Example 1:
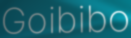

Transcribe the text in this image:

Goibibo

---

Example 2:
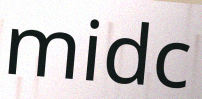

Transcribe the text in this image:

midc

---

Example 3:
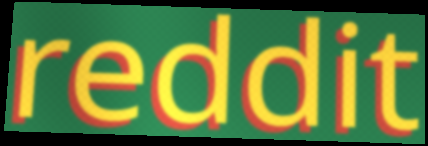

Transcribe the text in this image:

reddit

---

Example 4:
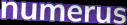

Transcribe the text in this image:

numerus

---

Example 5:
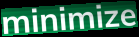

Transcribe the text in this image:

minimize